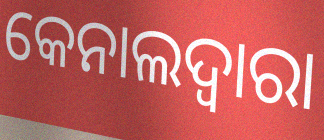
କେନାଲଦ୍ଵାରା